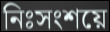
নিঃসংশয়ে